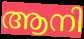
ആനി